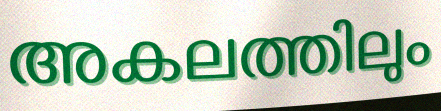
അകലത്തിലും